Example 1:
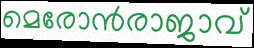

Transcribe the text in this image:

മെരോൻരാജാവ്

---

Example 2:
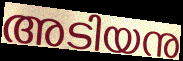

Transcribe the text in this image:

അടിയനു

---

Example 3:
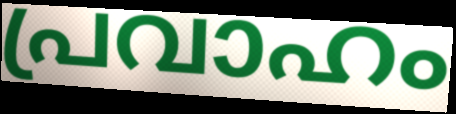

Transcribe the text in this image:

പ്രവാഹം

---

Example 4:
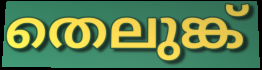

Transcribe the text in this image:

തെലുങ്ക്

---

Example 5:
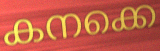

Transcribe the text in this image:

കനക്കെ